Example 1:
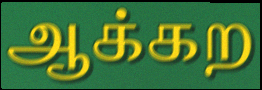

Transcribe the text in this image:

ஆக்கற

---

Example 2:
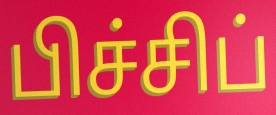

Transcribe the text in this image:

பிச்சிப்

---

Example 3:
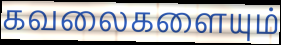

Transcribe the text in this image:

கவலைகளையும்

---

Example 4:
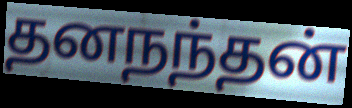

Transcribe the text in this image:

தனநந்தன்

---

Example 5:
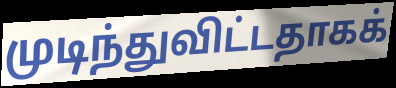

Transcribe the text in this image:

முடிந்துவிட்டதாகக்